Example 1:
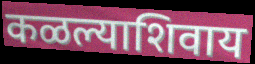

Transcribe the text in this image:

कळल्याशिवाय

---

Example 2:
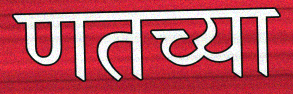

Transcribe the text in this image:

णतच्या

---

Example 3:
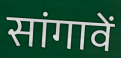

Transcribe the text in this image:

सांगावें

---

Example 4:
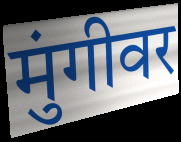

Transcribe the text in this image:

मुंगीवर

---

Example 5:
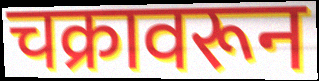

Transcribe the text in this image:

चक्रावरून